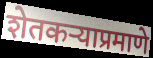
शेतकऱ्याप्रमाणे